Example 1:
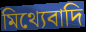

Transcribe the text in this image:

মিথ্যেবাদি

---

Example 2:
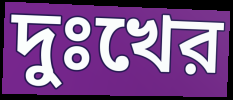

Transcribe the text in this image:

দুঃখের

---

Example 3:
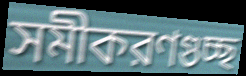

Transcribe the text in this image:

সমীকরণগুচ্ছ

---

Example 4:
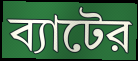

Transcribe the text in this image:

ব্যাটের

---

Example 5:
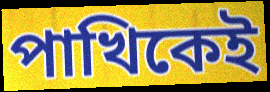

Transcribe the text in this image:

পাখিকেই